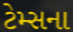
ટેમ્સના